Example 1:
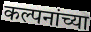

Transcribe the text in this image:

कल्पनांच्या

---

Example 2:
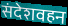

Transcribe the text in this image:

संदेशवहन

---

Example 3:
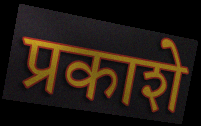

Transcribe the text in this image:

प्रकाशे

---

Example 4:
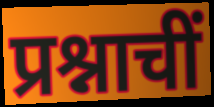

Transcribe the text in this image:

प्रश्नाचीं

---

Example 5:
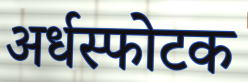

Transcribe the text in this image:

अर्धस्फोटक